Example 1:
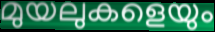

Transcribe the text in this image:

മുയലുകളെയും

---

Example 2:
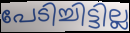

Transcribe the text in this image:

പേടിച്ചിട്ടില്ല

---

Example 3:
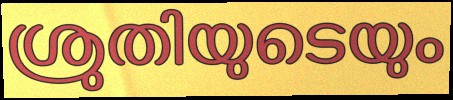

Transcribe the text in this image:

ശ്രുതിയുടെയും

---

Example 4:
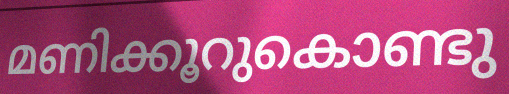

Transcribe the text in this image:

മണിക്കൂറുകൊണ്ടു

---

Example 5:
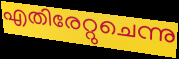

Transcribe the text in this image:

എതിരേറ്റുചെന്നു